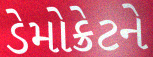
ડેમોક્રેટને